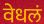
वेधलं